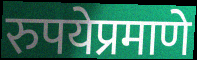
रुपयेप्रमाणे